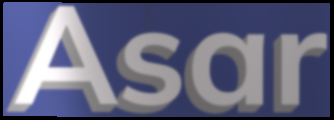
Asar